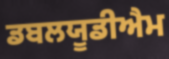
ਡਬਲਯੂਡੀਐਮ